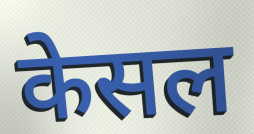
केसल